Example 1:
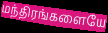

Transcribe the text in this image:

மந்திரங்களையே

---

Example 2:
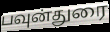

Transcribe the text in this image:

பவுன்துரை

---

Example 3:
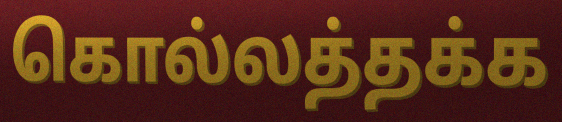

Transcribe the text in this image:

கொல்லத்தக்க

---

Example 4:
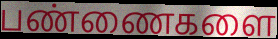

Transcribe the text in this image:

பண்ணைகளை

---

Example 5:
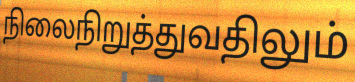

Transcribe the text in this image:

நிலைநிறுத்துவதிலும்